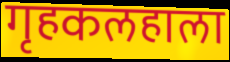
गृहकलहाला